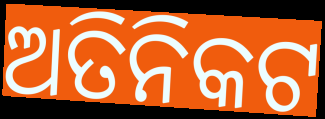
ଅତିନିକଟ